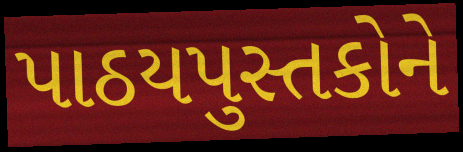
પાઠયપુસ્તકોને